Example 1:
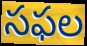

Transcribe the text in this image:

సఫల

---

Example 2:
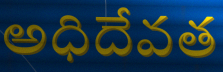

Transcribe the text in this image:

అధిదేవత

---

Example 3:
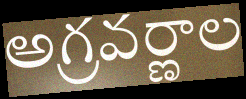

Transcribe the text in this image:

అగ్రవర్ణాల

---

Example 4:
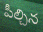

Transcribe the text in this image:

పీల్చిన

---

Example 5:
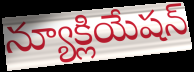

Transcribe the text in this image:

న్యూక్లియేషన్